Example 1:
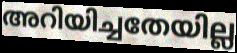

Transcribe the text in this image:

അറിയിച്ചതേയില്ല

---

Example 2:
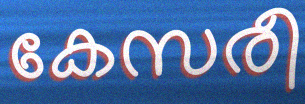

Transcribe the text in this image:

കേസരീ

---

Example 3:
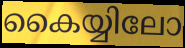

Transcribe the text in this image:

കൈയ്യിലോ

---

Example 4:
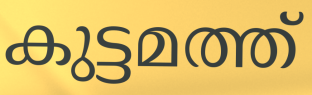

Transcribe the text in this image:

കുട്ടമത്ത്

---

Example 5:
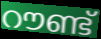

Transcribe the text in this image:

റൗണ്ട്